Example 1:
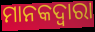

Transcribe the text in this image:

ମାନକଦ୍ୱାରା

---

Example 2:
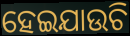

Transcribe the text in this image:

ହେଇଯାଉଚି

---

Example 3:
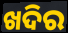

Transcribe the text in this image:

ଖଦିର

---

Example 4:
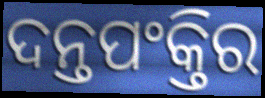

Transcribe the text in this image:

ଦନ୍ତପଂକ୍ତିର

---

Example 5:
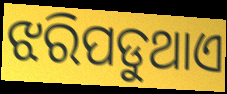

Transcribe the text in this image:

ଝରିପଡୁଥାଏ